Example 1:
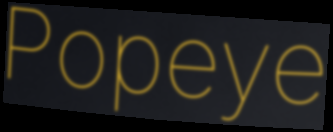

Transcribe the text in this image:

Popeye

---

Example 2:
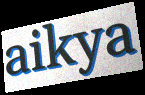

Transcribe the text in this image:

aikya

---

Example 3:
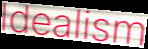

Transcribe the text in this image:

Idealism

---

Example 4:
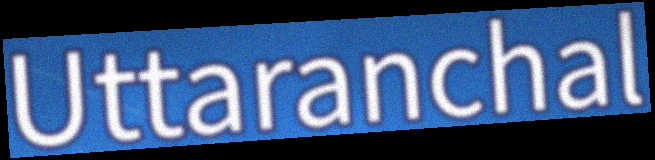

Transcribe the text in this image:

Uttaranchal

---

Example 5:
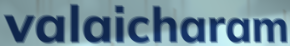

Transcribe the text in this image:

valaicharam